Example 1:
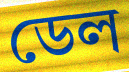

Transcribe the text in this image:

ডেল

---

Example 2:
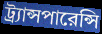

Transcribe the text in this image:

ট্র্যান্সপারেন্সি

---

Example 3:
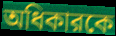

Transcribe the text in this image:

অধিকারকে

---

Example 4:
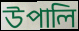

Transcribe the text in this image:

উপালি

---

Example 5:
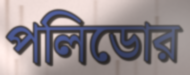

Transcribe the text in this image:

পলিডোর